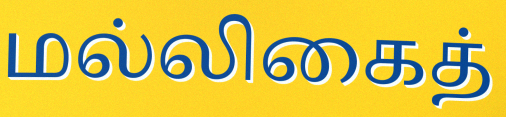
மல்லிகைத்